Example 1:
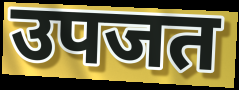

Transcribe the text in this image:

उपजत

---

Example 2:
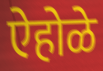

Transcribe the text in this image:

ऐहोळे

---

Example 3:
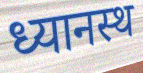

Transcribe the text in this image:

ध्यानस्थ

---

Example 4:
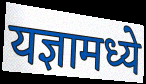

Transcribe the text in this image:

यज्ञामध्ये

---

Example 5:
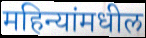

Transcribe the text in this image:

महिन्यांमधील